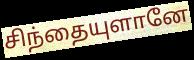
சிந்தையுளானே